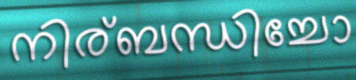
നിര്ബന്ധിച്ചോ